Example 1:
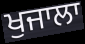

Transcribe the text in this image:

ਖੁਜਾਲਾ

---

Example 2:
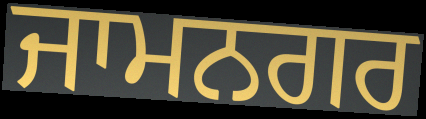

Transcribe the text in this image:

ਜਾਮਨਗਰ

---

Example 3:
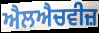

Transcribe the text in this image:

ਐਲਐਚਵੀਜ਼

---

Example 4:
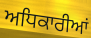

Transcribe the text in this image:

ਅਧਿਕਾਰੀਆਂ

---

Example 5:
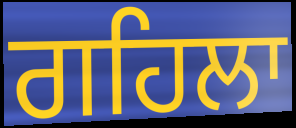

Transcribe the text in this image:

ਗਹਿਲਾ